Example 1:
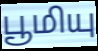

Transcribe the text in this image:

பூமியு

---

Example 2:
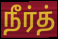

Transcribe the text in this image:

நீர்த்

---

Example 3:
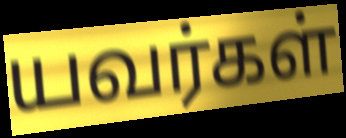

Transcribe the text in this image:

யவர்கள்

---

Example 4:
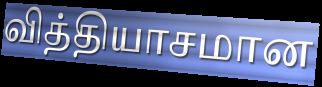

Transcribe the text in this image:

வித்தியாசமான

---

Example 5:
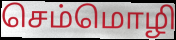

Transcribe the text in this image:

செம்மொழி